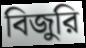
বিজুরি